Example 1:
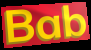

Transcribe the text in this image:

Bab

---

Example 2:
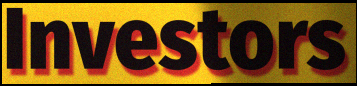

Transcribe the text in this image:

Investors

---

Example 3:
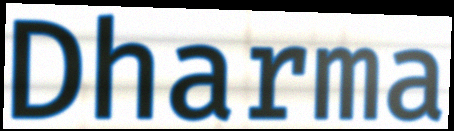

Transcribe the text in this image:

Dharma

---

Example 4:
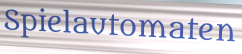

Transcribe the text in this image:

Spielautomaten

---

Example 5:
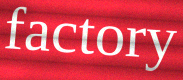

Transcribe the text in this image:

factory